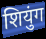
शियुंग